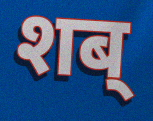
शब्